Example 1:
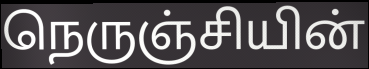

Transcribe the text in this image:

நெருஞ்சியின்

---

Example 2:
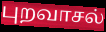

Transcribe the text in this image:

புறவாசல்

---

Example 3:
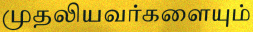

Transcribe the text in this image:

முதலியவர்களையும்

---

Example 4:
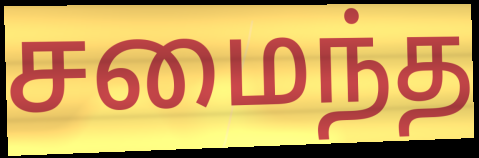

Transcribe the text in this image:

சமைந்த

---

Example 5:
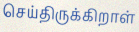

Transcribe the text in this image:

செய்திருக்கிறாள்